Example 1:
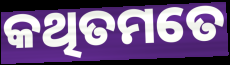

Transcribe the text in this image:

କଥିତମତେ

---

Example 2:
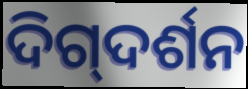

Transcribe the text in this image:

ଦିଗ୍‌ଦର୍ଶନ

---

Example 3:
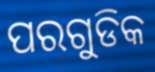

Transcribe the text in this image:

ପରଗୁଡିକ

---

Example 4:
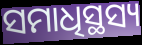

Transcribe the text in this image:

ସମାଧିସ୍ଥସ୍ୟ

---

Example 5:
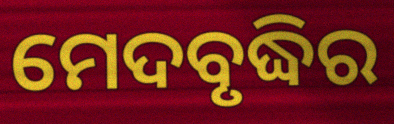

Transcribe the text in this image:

ମେଦବୃଦ୍ଧିର